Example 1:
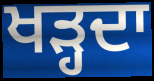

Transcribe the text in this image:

ਖੜ੍ਹਦਾ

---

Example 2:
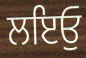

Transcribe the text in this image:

ਲਇਓੁ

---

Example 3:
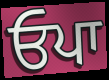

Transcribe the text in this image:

ਓਪਾ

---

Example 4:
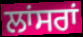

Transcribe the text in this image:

ਲਾਂਸਰਾਂ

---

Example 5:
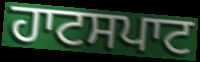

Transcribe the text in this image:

ਹਾਟਸਪਾਟ